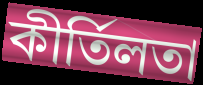
কীৰ্তিলতা